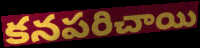
కనపరిచాయి